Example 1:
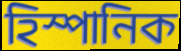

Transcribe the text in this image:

হিস্পানিক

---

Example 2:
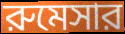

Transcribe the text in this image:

রুমেসার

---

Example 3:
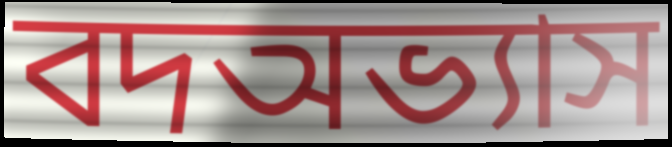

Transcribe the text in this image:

বদঅভ্যাস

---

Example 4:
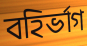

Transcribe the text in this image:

বহির্ভাগ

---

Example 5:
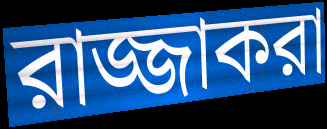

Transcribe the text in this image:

রাজ্জাকরা